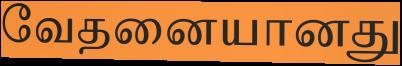
வேதனையானது